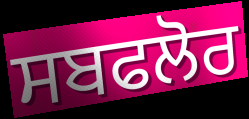
ਸਬਫਲੋਰ